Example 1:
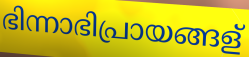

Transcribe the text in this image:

ഭിന്നാഭിപ്രായങ്ങള്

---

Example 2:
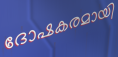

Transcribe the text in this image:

ദോഷകരമായി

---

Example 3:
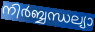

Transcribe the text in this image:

നിർബ്ബന്ധല്യാ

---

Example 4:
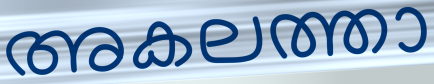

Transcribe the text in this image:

അകലത്താ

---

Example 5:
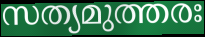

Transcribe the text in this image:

സത്യമുത്തരഃ